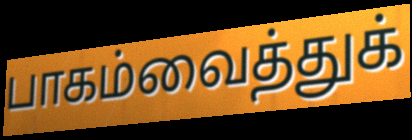
பாகம்வைத்துக்